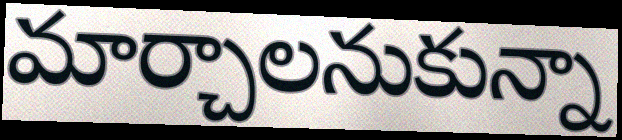
మార్చాలనుకున్నా